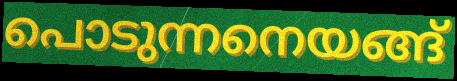
പൊടുന്നനെയങ്ങ്